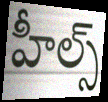
హీల్స్